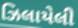
ઝિલાયેલી